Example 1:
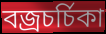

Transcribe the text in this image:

বজ্রচর্চিকা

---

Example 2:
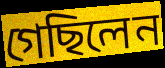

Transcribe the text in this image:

গেছিলেন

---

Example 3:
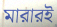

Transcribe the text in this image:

মারারই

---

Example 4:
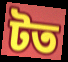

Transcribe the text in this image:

টত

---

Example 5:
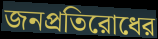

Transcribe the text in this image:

জনপ্রতিরোধের